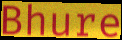
Bhure